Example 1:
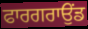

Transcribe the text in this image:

ਫਾਰਗਰਾਉਂਡ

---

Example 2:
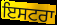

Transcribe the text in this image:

ਇਸਟਰਾ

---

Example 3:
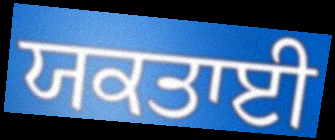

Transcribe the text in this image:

ਯਕਤਾਈ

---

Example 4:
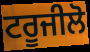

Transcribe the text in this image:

ਟਰੂਜੀਲੋ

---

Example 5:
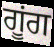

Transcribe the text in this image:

ਗੂਂਗ